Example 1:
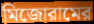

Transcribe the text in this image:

মিজোরামের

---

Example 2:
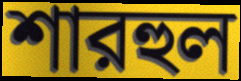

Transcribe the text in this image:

শারহুল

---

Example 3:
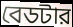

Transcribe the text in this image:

বেডটার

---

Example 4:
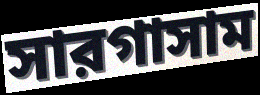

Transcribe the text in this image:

সারগাসাম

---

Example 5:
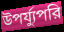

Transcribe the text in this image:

উপর্য্যুপরি